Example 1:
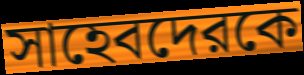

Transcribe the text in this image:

সাহেবদেরকে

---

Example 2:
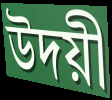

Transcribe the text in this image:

উদয়ী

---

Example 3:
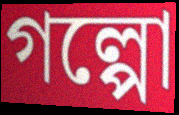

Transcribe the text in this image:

গল্পো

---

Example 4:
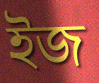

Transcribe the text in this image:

ইজ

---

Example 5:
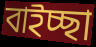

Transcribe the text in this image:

বাইচ্ছা